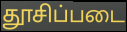
தூசிப்படை